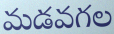
మడవగల